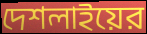
দেশলাইয়ের